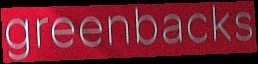
greenbacks